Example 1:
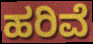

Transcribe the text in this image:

ಹರಿವೆ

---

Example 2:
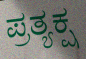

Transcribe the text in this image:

ಪ್ರತ್ಯಕ್ಷ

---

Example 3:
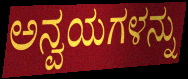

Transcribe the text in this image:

ಅನ್ವಯಗಳನ್ನು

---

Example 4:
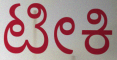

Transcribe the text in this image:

ಟೀಕಿ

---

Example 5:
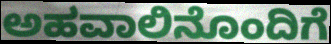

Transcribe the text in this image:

ಅಹವಾಲಿನೊಂದಿಗೆ